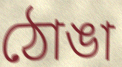
ঠোঙা